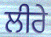
ਲੀਰੇ